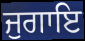
ਜੁਗਾਇ